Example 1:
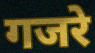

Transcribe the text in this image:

गजरे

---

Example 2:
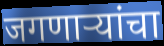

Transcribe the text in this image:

जगणाऱ्यांचा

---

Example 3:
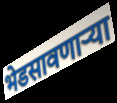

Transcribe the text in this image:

भेडसावणाऱ्या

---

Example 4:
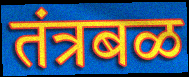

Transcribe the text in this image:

तंत्रबळ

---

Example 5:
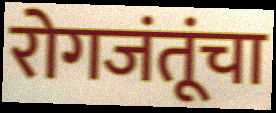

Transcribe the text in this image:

रोगजंतूंचा